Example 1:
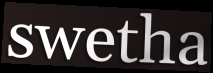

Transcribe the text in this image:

swetha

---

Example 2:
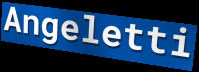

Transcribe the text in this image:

Angeletti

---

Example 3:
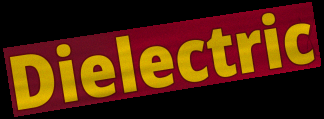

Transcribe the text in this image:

Dielectric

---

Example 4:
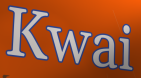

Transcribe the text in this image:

Kwai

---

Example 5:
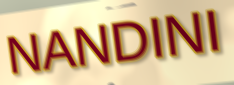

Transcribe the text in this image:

NANDINI